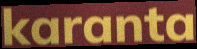
karanta